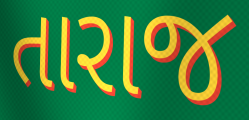
તારાજ